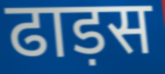
ढाड़स